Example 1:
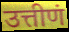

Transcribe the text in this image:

उत्तीणं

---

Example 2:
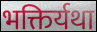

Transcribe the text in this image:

भक्तिर्यथा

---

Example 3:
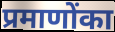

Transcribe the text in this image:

प्रमाणोंका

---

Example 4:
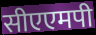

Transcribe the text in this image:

सीएएमपी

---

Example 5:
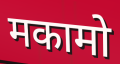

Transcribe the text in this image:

मकामो